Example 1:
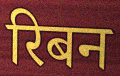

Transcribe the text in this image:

रिबन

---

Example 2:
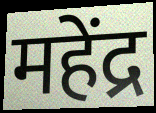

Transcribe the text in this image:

महेंद्र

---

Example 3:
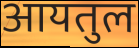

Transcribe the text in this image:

आयतुल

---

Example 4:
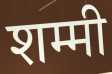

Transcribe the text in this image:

शम्मी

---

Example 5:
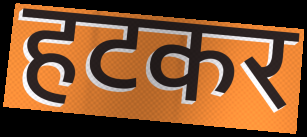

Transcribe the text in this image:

हटकर